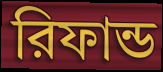
রিফান্ড